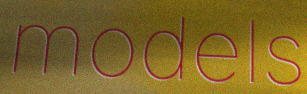
models